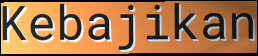
Kebajikan